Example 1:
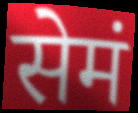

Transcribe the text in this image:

सेमं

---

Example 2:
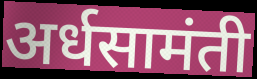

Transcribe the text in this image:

अर्धसामंती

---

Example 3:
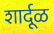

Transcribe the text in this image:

शार्दूळ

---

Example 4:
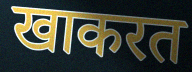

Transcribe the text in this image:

खाकरत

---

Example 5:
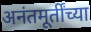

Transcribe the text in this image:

अनंतमूर्तींच्या